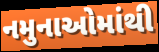
નમુનાઓમાંથી